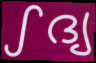
ഽദ്യ